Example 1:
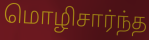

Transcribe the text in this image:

மொழிசார்ந்த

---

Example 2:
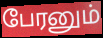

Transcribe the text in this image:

பேரனும்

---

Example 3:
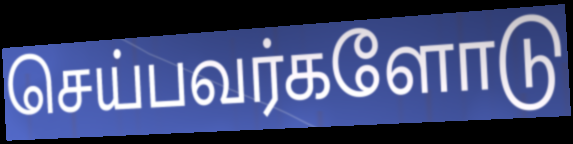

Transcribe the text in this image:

செய்பவர்களோடு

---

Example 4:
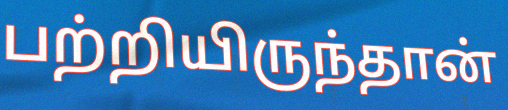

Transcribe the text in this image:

பற்றியிருந்தான்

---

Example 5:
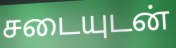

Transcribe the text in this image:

சடையுடன்